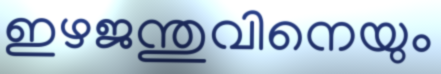
ഇഴജന്തുവിനെയും